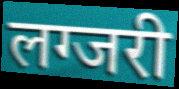
लग्जरी